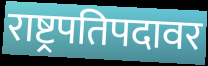
राष्ट्रपतिपदावर